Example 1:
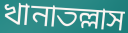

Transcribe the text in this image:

খানাতল্লাস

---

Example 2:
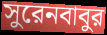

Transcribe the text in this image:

সুরেনবাবুর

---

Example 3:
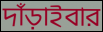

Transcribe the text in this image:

দাঁড়াইবার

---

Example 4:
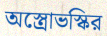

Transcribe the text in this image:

অস্ত্রোভস্কির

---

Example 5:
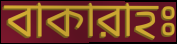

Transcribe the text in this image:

বাকারাহঃ